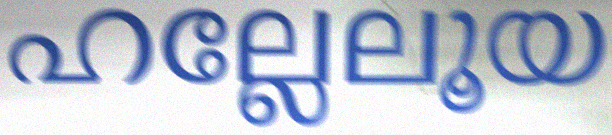
ഹല്ലേലൂയ